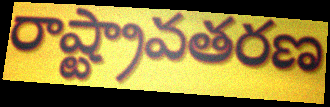
రాష్ట్రావతరణ